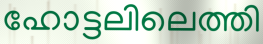
ഹോട്ടലിലെത്തി